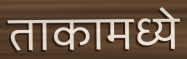
ताकामध्ये